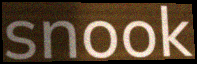
snook